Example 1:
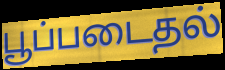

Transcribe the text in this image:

பூப்படைதல்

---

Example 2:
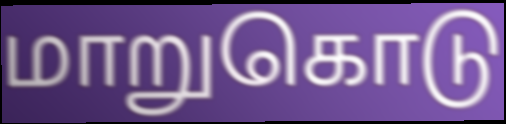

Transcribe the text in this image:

மாறுகொடு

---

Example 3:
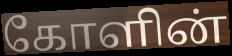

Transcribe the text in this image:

கோளின்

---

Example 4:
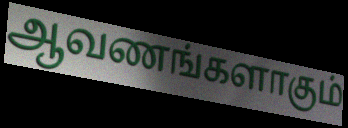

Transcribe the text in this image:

ஆவணங்களாகும்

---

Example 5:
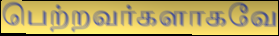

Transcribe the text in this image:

பெற்றவர்களாகவே